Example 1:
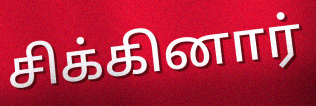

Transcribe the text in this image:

சிக்கினார்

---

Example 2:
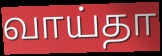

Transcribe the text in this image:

வாய்தா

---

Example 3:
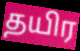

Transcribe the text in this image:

தயிர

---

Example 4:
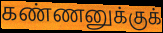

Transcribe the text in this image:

கண்ணனுக்குக்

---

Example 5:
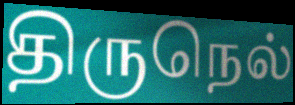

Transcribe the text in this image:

திருநெல்